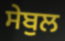
ਸੇਬੁਲ